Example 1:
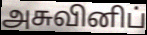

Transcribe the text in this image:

அசுவினிப்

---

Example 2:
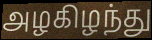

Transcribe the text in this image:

அழகிழந்து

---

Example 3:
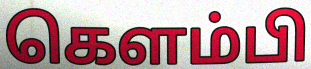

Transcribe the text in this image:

கெளம்பி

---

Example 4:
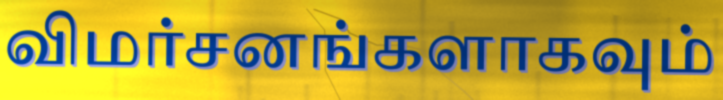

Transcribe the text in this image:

விமர்சனங்களாகவும்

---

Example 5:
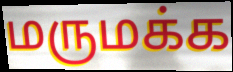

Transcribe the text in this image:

மருமக்க